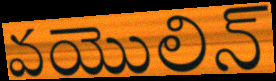
వయొలిన్